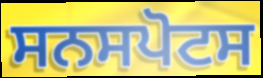
ਸਨਸਪੋਟਸ